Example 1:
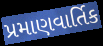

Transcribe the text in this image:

પ્રમાણવાર્તિક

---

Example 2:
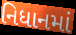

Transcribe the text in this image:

નિધાનમાં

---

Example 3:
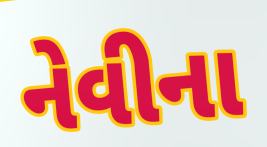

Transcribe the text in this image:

નેવીના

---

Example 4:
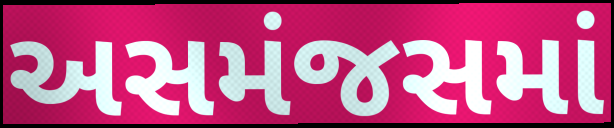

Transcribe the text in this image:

અસમંજસમાં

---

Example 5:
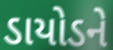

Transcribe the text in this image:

ડાયોડને